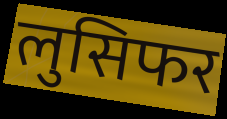
लुसिफर